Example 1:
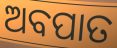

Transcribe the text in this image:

ଅବପାତ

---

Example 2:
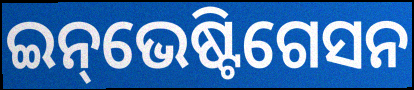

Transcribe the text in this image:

ଇନ୍‌ଭେଷ୍ଟିଗେସନ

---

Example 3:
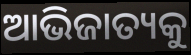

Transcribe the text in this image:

ଆଭିଜାତ୍ୟକୁ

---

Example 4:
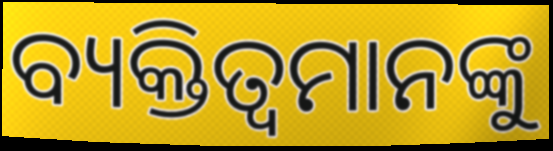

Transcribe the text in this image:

ବ୍ୟକ୍ତିତ୍ବମାନଙ୍କୁ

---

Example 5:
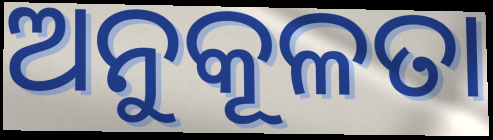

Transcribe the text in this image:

ଅନୁକୂଳତା